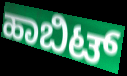
ಹಾಬಿಟ್